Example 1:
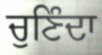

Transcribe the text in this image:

ਚੁਣਿੰਦਾ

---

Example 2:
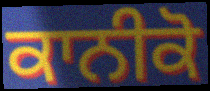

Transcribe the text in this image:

ਕਾਨੀਕੋ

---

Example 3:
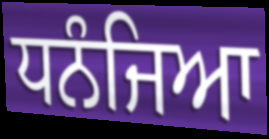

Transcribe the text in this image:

ਧਨੰਜਿਆ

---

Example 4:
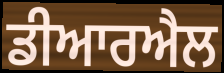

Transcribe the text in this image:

ਡੀਆਰਐਲ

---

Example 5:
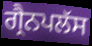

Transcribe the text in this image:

ਗ੍ਰੈਨਪਲੱਸ